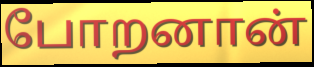
போறனான்